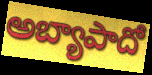
అబ్యాపాదో